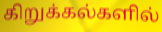
கிறுக்கல்களில்